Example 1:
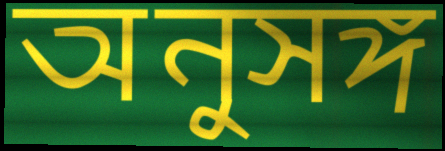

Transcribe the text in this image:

অনুসঙ্গ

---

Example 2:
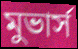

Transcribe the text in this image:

মুভার্স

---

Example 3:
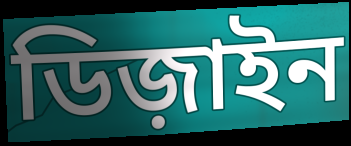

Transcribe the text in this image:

ডিজ়াইন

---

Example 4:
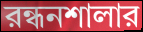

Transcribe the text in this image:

রন্ধনশালার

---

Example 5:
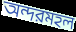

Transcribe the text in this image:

অন্দরমহল